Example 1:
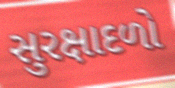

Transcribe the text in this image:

સુરક્ષાદળો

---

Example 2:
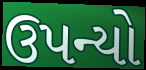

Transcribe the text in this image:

ઉપન્યો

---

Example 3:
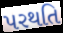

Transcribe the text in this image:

પરથતિ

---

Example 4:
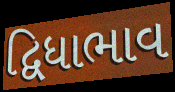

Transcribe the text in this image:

દ્વિધાભાવ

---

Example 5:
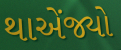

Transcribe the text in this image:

થાએંજ્યો